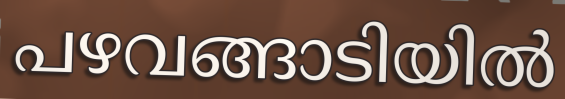
പഴവങ്ങാടിയിൽ